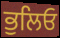
ਭੁਲਿਓ